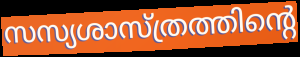
സസ്യശാസ്ത്രത്തിന്റെ